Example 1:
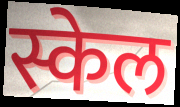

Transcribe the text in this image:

स्केल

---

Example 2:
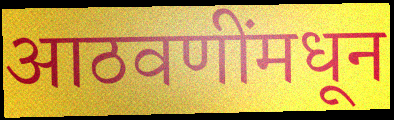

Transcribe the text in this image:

आठवणींमधून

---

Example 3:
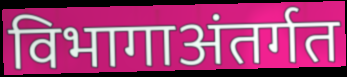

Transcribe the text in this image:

विभागाअंतर्गत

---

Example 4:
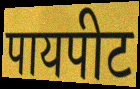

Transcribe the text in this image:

पायपीट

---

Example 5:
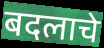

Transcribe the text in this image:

बदलाचे